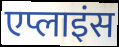
एप्लाइंस